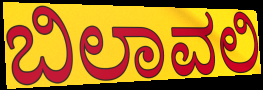
ಬಿಲಾವಲಿ